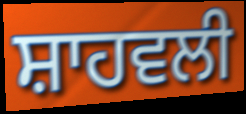
ਸ਼ਾਹਵਲੀ